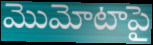
మొమోటాపై